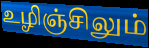
உழிஞ்சிலும்